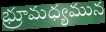
భ్రూమధ్యమున